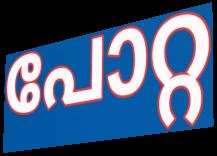
പോറ്റ